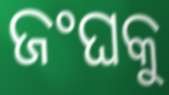
ଜଂଘକୁ